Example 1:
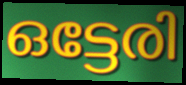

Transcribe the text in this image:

ഒട്ടേരി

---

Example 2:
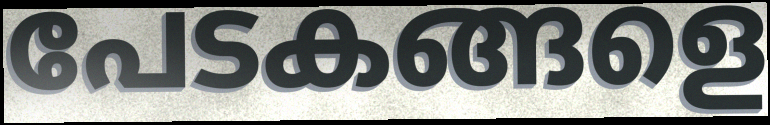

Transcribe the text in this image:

പേടകങ്ങളെ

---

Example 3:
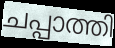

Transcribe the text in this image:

ചപ്പാത്തി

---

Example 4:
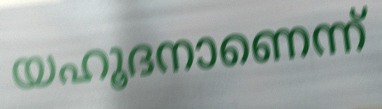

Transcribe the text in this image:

യഹൂദനാണെന്ന്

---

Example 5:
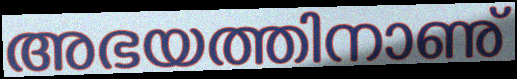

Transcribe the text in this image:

അഭയത്തിനാണു്